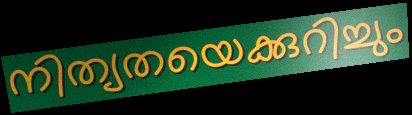
നിത്യതയെക്കുറിച്ചും